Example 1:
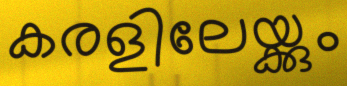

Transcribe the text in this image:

കരളിലേയ്ക്കും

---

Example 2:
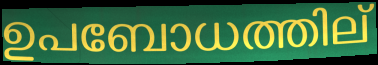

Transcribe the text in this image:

ഉപബോധത്തില്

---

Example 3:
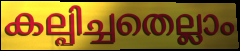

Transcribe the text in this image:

കല്പിച്ചതെല്ലാം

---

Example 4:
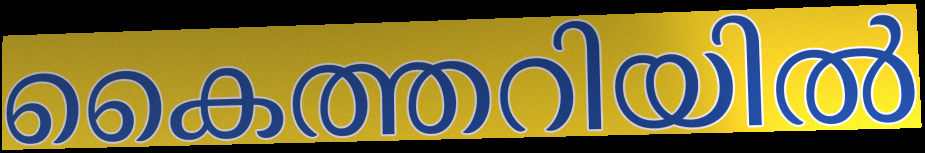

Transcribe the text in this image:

കൈത്തറിയിൽ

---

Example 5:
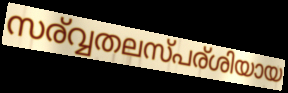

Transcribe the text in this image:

സര്വ്വതലസ്പര്ശിയായ